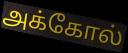
அக்கோல்